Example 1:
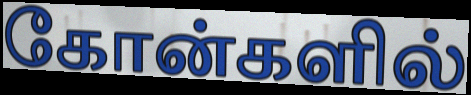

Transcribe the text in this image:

கோன்களில்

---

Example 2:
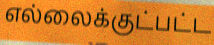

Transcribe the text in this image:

எல்லைக்குட்பட்ட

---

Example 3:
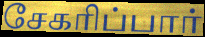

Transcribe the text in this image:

சேகரிப்பார்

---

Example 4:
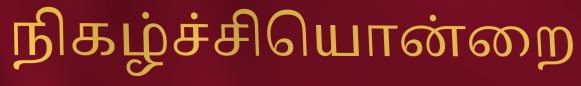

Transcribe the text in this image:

நிகழ்ச்சியொன்றை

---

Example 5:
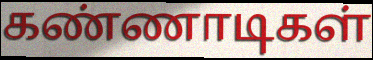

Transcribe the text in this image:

கண்ணாடிகள்